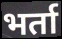
भर्ता